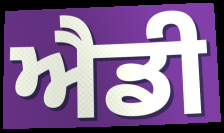
ਐਡੀ